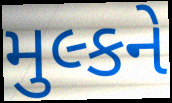
મુલ્કને